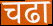
चढा